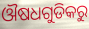
ଔଷଧଗୁଡିକରୁ